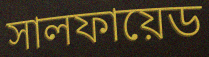
সালফায়েড